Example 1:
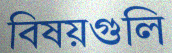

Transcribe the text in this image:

বিষয়গুলি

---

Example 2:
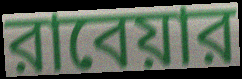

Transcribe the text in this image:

রাবেয়ার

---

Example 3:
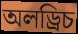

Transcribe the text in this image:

অলড্রিচ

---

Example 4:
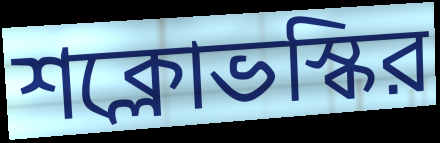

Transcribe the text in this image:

শক্লোভস্কির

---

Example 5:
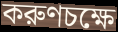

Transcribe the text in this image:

করুণচক্ষে